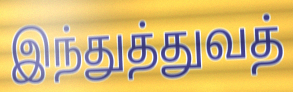
இந்துத்துவத்